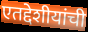
एतद्देशीयांची